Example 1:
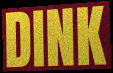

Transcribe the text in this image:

DINK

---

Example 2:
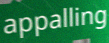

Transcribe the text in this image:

appalling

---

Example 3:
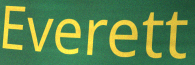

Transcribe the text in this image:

Everett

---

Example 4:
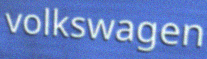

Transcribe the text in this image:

volkswagen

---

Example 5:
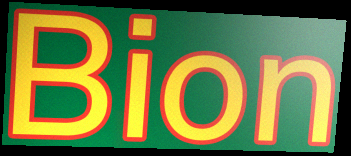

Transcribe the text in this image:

Bion